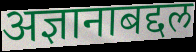
अज्ञानाबद्दल